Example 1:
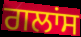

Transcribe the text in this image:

ਗਲਾਂਸ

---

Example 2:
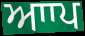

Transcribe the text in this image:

ਆਾਪ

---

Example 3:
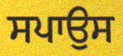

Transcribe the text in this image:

ਸਪਾਉਸ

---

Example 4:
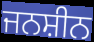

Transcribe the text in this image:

ਜਨਸ਼ੀਨ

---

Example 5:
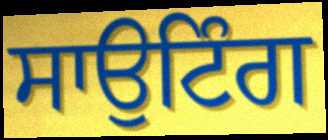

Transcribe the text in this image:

ਸਾਉਟਿੰਗ